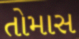
તોમાસ